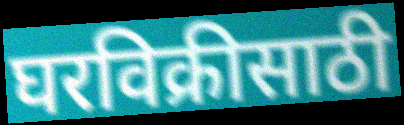
घरविक्रीसाठी